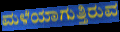
ಮಳೆಯಾಗುತ್ತಿರುವ